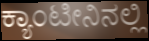
ಕ್ಯಾಂಟೀನಿನಲ್ಲಿ